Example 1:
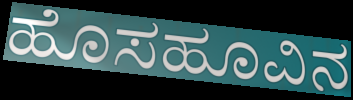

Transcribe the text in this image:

ಹೊಸಹೂವಿನ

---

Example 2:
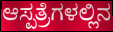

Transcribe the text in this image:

ಆಸ್ಪತ್ರೆಗಳಲ್ಲಿನ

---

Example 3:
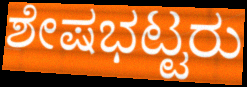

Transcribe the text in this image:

ಶೇಷಭಟ್ಟರು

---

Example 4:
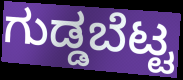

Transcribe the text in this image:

ಗುಡ್ಡಬೆಟ್ಟ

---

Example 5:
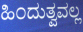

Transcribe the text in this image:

ಹಿಂದುತ್ವವಲ್ಲ